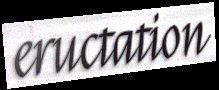
eructation